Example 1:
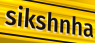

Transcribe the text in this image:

sikshnha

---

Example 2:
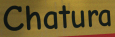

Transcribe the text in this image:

Chatura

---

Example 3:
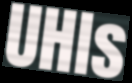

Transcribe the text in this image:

UHIs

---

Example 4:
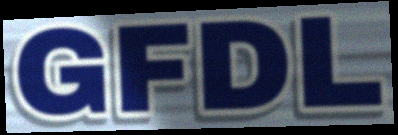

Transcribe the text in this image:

GFDL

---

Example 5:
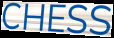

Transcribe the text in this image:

CHESS